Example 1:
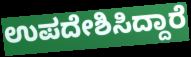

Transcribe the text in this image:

ಉಪದೇಶಿಸಿದ್ದಾರೆ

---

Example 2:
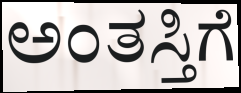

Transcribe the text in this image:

ಅಂತಸ್ತಿಗೆ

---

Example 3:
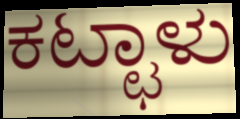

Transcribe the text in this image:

ಕಟ್ಟಾಳು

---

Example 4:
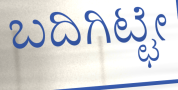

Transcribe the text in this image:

ಬದಿಗಿಟ್ಟೇ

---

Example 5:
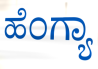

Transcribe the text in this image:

ಹೆಂಗ್ಯಾ